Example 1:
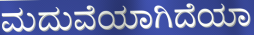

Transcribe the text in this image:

ಮದುವೆಯಾಗಿದೆಯಾ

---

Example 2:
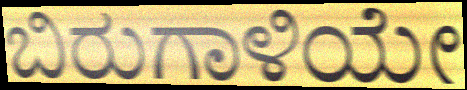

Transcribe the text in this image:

ಬಿರುಗಾಳಿಯೇ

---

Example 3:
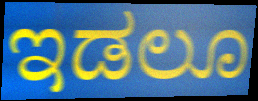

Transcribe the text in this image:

ಇಡಲೂ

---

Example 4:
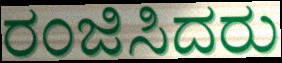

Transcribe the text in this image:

ರಂಜಿಸಿದರು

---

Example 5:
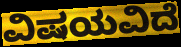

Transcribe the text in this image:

ವಿಷಯವಿದೆ